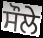
ਸੌਲੇ